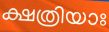
ക്ഷത്രിയാഃ